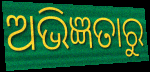
ଅଭିଜ୍ଞତାରୁ